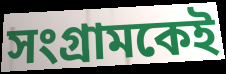
সংগ্রামকেই